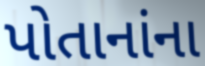
પોતાનાંના